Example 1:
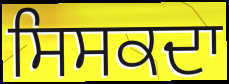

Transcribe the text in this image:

ਸਿਸਕਦਾ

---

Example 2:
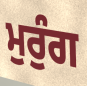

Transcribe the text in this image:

ਮੁਰੁੰਗ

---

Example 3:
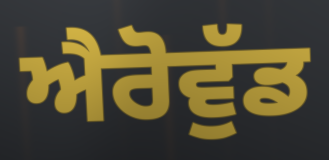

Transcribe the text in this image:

ਐਰੋਵੁੱਡ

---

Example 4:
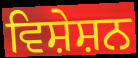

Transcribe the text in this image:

ਵਿਸ਼ੇਸ਼ਨ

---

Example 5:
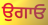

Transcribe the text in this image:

ਉਗਾਓ